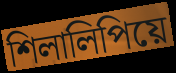
শিলালিপিয়ে